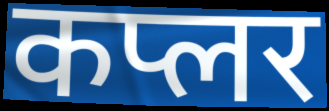
कप्लर